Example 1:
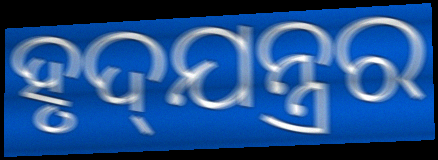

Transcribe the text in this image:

ହୃଦ୍‍ଯନ୍ତ୍ରର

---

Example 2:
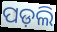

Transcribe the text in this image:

ପଡ଼ଲି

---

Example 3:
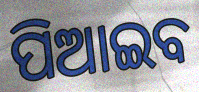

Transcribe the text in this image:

ପିଆଇବ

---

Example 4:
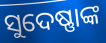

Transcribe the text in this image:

ସୁଦେଷ୍ଣାଙ୍କ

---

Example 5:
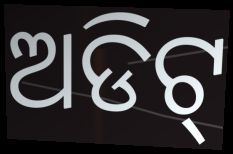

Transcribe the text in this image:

ଅଡିଟ୍